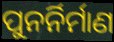
ପୁନର୍ନିର୍ମାଣ